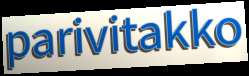
parivitakko